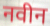
नवीन